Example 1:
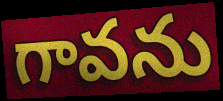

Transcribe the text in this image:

గావను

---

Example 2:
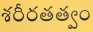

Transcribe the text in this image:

శరీరతత్వం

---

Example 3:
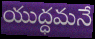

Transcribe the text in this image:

యుద్ధమనే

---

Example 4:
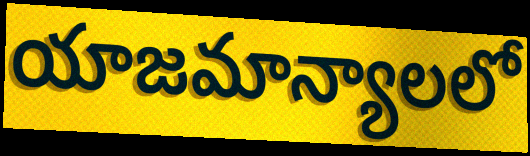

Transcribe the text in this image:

యాజమాన్యాలలో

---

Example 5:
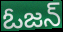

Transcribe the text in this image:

ఓజన్